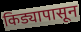
किड्यापासून